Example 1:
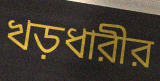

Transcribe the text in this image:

খড়ধারীর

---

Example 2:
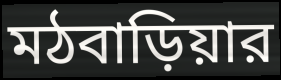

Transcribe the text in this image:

মঠবাড়িয়ার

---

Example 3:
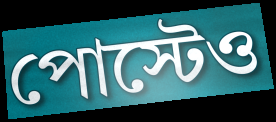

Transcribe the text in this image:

পোস্টেও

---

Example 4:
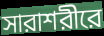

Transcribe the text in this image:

সারাশরীরে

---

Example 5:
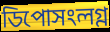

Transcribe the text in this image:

ডিপোসংলগ্ন